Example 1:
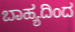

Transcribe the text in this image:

ಬಾಹ್ಯದಿಂದ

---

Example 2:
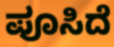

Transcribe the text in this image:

ಪೂಸಿದೆ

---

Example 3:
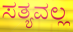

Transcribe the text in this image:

ಸತ್ಯವಲ್ಲ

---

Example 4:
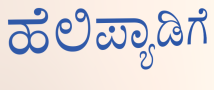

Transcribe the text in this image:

ಹೆಲಿಪ್ಯಾಡಿಗೆ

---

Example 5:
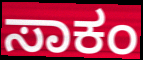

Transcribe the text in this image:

ಸಾಕಂ